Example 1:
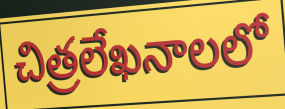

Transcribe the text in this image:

చిత్రలేఖనాలలో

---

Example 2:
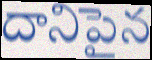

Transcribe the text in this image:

దానిపైన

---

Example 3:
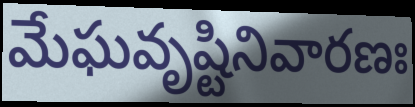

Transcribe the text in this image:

మేఘవృష్టినివారణః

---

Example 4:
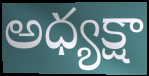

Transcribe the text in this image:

అధ్యక్షా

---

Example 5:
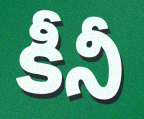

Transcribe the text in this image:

కీనీ